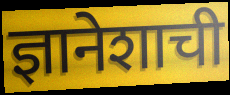
ज्ञानेशाची